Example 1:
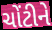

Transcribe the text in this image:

ચોંટીને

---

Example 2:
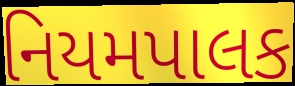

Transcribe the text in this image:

નિયમપાલક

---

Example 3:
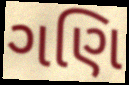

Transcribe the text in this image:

ગણિ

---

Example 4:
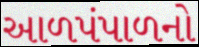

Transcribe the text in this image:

આળપંપાળનો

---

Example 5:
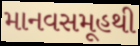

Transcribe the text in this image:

માનવસમૂહથી